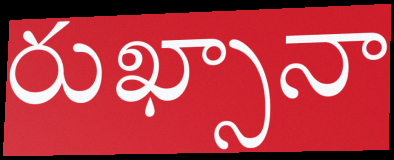
రుఖ్సానా